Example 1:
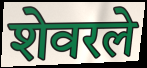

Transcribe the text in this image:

शेवरले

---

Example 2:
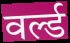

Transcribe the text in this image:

वर्ल्‍ड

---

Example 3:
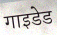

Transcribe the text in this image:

गाइडेड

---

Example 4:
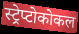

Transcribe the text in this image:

स्ट्रेप्टोकोकल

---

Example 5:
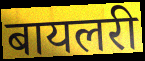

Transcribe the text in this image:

बायलरी